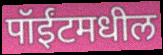
पॉईंटमधील